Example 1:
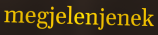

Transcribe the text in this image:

megjelenjenek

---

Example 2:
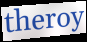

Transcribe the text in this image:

theroy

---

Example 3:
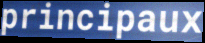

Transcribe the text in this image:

principaux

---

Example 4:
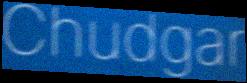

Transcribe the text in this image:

Chudgar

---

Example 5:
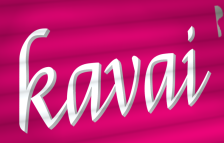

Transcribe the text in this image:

kavai